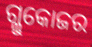
ଗ୍ଲୁକୋଜର